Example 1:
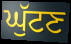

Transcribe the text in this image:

ਘੁੱਟਣ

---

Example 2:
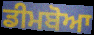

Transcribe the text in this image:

ਡੀਮਬੋਆ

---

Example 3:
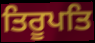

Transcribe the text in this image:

ਤਿਰੂਪਤਿ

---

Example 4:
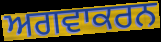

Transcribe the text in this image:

ਅਗਵਾਕਰਨ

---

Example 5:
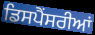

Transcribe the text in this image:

ਡਿਸਪੈਂਸਰੀਆਂ